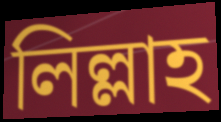
লিল্লাহ